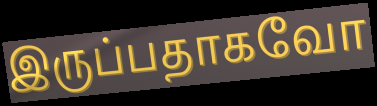
இருப்பதாகவோ